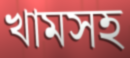
খামসহ